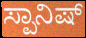
ಸ್ಪಾನಿಷ್